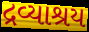
દ્રવ્યાશ્રય